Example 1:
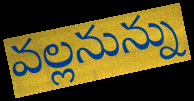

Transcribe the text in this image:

వల్లనున్ను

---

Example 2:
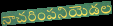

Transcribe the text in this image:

నాచరింపనియెడల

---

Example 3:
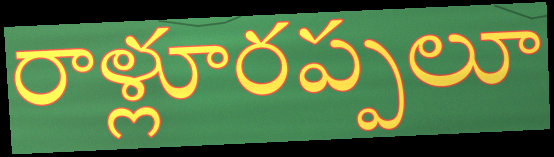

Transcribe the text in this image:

రాళ్లూరప్పలూ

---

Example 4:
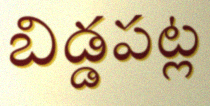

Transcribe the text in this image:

బిడ్డపట్ల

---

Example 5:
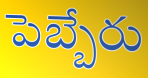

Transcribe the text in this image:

పెబ్బేరు